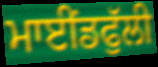
ਮਾਈਂਡਫੁੱਲੀ